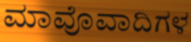
ಮಾವೊವಾದಿಗಳ